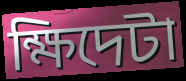
ক্ষিদেটা